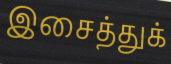
இசைத்துக்